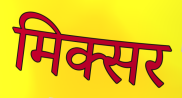
मिक्सर